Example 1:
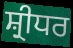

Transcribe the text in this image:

ਸ਼੍ਰੀਧਰ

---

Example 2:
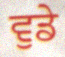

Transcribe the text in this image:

ਵੁਡੇ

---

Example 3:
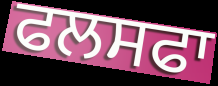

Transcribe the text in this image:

ਫਲਸਫਾ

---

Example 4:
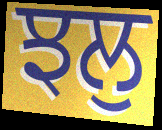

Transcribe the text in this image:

ਝਲੁ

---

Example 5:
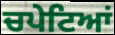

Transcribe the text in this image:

ਚਪੇਟਿਆਂ